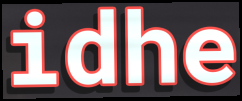
idhe